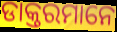
ଡାକ୍ତରମାନେ